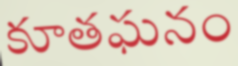
కూతఘనం